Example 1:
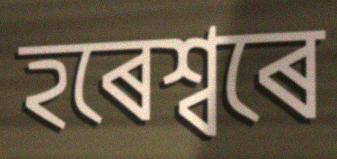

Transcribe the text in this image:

হৰেশ্বৰে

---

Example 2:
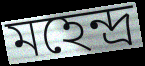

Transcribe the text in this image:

মহেন্দ্ৰ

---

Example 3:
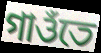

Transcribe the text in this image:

গাওঁতে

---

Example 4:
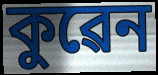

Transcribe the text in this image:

কুৱেন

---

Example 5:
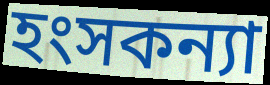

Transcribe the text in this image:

হংসকন্যা